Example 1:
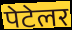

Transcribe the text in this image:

पेटेलर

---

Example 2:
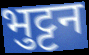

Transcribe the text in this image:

भुट्टन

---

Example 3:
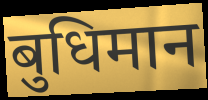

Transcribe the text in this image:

बुधिमान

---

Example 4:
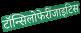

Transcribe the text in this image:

टॉन्सिलोफेरींजाइटिस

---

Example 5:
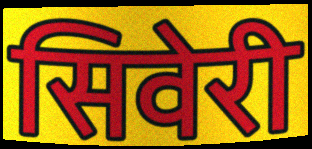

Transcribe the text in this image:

सिवेरी